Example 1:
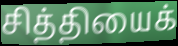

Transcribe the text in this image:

சித்தியைக்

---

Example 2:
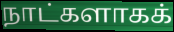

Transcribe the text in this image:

நாட்களாகக்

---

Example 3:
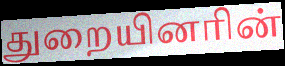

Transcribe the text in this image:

துறையினரின்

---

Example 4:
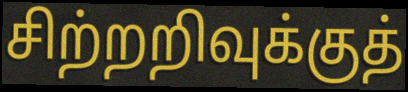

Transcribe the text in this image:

சிற்றறிவுக்குத்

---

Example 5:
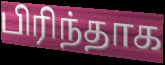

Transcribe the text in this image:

பிரிந்தாக